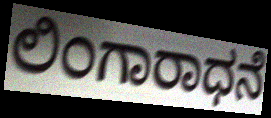
ಲಿಂಗಾರಾಧನೆ